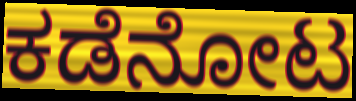
ಕಡೆನೋಟ